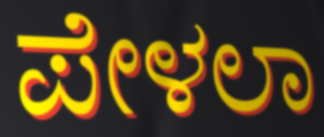
ಪೇಳಲಾ